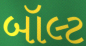
બૉલ્ટ